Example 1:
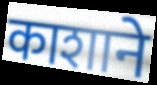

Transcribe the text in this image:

काशाने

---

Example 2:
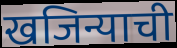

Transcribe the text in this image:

खजिन्याची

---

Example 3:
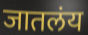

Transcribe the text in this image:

जातलंय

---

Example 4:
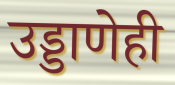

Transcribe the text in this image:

उड्डाणेही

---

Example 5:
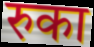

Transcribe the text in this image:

रुका